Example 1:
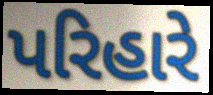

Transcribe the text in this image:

પરિહારે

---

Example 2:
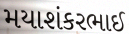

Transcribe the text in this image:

મયાશંકરભાઈ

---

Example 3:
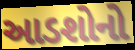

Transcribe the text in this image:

આડશોનો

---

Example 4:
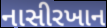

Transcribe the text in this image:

નાસીરખાન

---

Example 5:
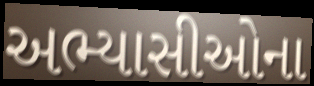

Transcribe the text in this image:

અભ્યાસીઓના